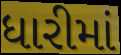
ધારીમાં